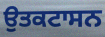
ਉਤਕਟਾਸਨ